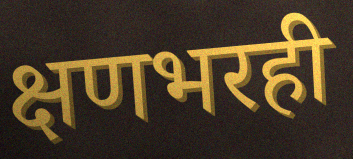
क्षणभरही